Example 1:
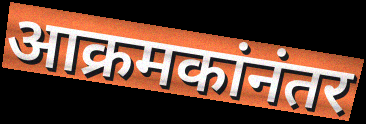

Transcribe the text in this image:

आक्रमकांनंतर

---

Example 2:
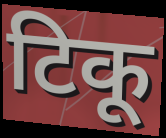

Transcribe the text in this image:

टिकू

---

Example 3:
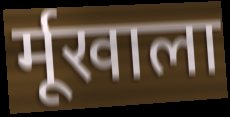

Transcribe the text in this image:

र्मूखाला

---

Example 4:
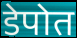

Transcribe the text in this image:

डेपोत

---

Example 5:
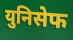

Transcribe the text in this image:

युनिसेफ